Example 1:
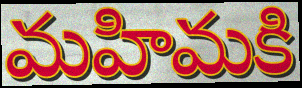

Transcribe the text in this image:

మహిమకి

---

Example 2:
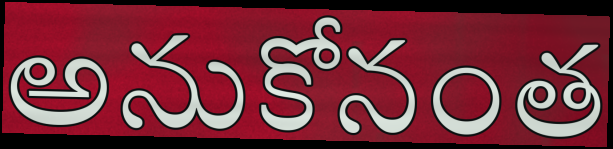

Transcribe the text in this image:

అనుకోనంత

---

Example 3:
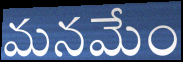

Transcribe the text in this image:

మనమేం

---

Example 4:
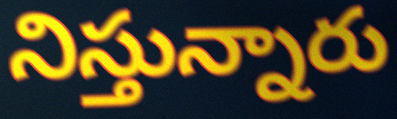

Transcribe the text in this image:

నిస్తున్నారు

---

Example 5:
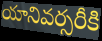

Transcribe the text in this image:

యానివర్సరీకి